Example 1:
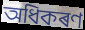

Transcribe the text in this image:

অধিকৰণ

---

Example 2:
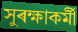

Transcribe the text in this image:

সুৰক্ষাকৰ্মী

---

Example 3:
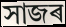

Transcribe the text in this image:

সাজৰ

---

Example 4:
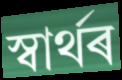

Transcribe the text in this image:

স্বাৰ্থৰ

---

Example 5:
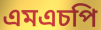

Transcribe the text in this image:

এমএচপি